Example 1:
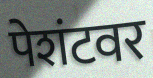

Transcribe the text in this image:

पेशंटवर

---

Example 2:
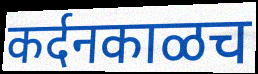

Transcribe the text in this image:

कर्दनकाळच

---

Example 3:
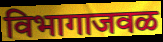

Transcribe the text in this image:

विभागाजवळ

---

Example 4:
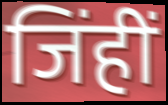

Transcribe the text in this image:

जिंहीं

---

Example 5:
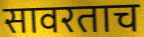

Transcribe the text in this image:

सावरताच